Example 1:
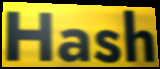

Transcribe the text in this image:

Hash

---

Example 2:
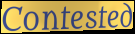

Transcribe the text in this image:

Contested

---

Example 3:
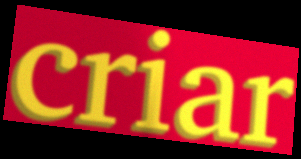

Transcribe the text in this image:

criar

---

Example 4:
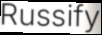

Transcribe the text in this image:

Russify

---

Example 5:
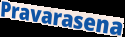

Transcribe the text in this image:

Pravarasena